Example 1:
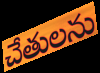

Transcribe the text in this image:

చేతులను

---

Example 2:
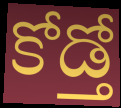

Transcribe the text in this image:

కోడ్తో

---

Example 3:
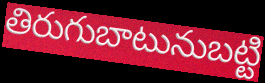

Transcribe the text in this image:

తిరుగుబాటునుబట్టి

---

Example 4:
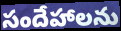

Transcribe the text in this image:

సందేహాలను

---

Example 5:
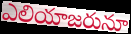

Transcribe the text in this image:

ఎలియాజరునూ